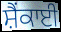
ਸ਼ੈਂਕਾਈ